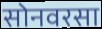
सोनवरसा